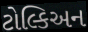
ટોલ્કિઅન